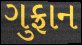
ગુફ્રાન